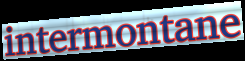
intermontane